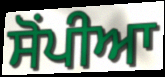
ਸੋਂਪੀਆ